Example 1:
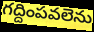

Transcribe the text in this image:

గద్దింపవలెను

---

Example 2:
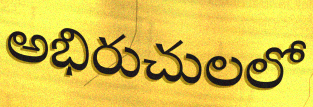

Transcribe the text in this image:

అభిరుచులలో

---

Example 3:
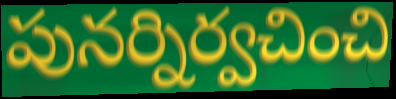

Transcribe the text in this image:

పునర్నిర్వచించి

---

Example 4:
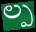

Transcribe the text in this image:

ల్ప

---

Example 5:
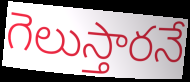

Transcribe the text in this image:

గెలుస్తారనే